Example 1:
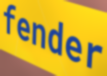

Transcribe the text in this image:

fender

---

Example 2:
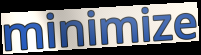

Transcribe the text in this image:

minimize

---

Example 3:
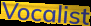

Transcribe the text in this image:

Vocalist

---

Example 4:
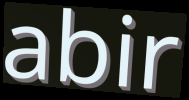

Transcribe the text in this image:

abir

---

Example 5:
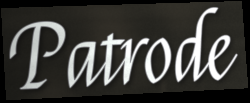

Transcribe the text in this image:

Patrode